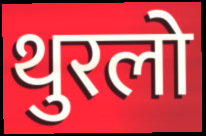
थुरलो